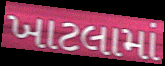
ખાટલામાં